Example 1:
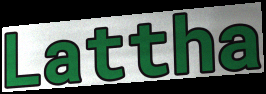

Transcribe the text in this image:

Lattha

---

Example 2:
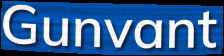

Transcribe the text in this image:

Gunvant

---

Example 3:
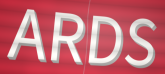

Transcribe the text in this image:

ARDS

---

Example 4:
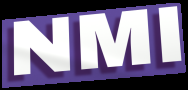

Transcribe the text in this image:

NMI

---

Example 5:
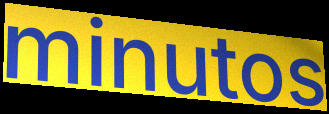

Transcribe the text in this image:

minutos